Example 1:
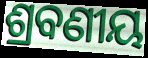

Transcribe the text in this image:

ଶ୍ରବଣୀୟ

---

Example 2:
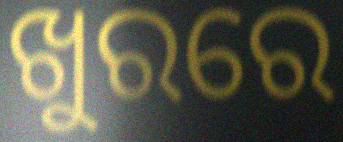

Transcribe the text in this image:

ଖୁରରେ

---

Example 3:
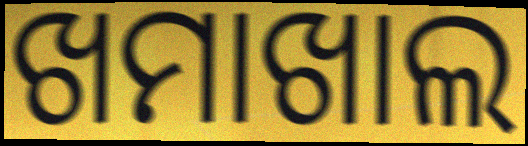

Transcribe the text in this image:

ଖମାଖାଲ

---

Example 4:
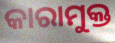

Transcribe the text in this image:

କାରାମୁକ୍ତ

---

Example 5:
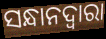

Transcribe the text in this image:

ସନ୍ଧାନଦ୍ୱାରା